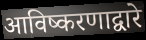
आविष्करणाद्वारे